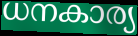
ധനകാര്യ